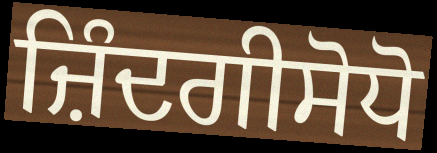
ਜ਼ਿੰਦਗੀਸੋਧੋ